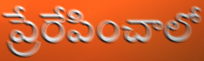
ప్రేరేపించాలో